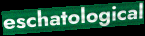
eschatological